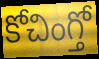
కోచింగ్తో